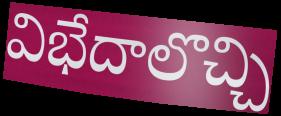
విభేదాలొచ్చి